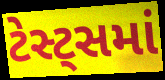
ટેસ્ટ્સમાં